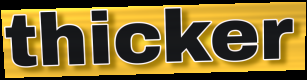
thicker